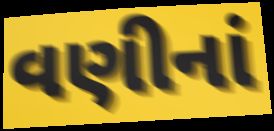
વણીનાં